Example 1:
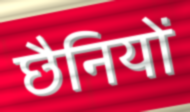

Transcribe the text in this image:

छैनियों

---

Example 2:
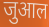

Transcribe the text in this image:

जुआल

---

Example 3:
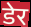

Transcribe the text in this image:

डेर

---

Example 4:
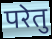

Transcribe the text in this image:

परेतु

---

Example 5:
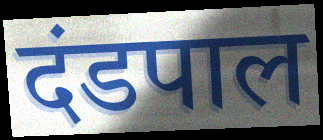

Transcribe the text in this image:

दंडपाल